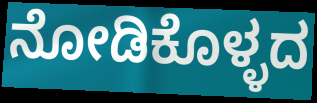
ನೋಡಿಕೊಳ್ಳದ